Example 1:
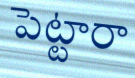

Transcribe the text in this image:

పెట్టారా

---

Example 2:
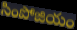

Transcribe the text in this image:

సింపోజియం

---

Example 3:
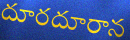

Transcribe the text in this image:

దూరదూరాన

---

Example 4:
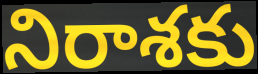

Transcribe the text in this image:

నిరాశకు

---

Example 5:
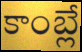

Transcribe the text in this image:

కాంబ్లే